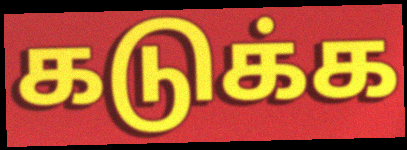
கடுக்க